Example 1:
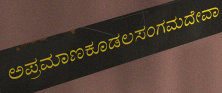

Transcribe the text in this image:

ಅಪ್ರಮಾಣಕೂಡಲಸಂಗಮದೇವಾ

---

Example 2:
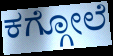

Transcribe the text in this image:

ಕಗ್ಗೋಲೆ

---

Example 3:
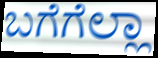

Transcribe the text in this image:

ಬಗೆಗೆಲ್ಲಾ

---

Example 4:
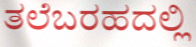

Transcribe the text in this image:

ತಲೆಬರಹದಲ್ಲಿ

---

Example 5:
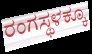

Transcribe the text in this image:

ರಂಗಸ್ಥಳಕ್ಕೂ